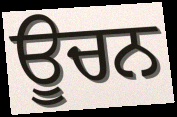
ਊਚਨ